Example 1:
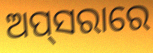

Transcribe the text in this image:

ଅପ୍‌ସରାରେ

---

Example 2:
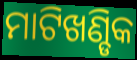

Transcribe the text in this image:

ମାଟିଖଣ୍ଡିକ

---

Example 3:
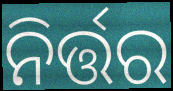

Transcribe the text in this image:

ନିର୍ତ୍ତର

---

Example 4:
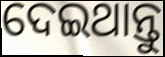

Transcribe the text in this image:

ଦେଇଥାନ୍ତୁ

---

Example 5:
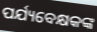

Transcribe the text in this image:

ପର୍ଯ୍ୟବେକ୍ଷକଙ୍କ